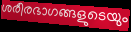
ശരീരഭാഗങ്ങളുടെയും